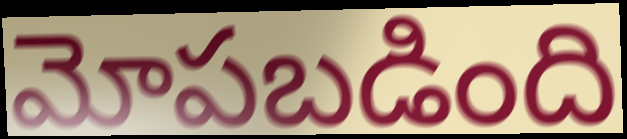
మోపబడింది